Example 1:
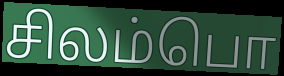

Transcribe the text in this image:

சிலம்பொ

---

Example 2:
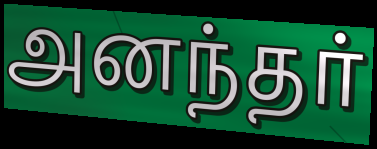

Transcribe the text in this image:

அனந்தர்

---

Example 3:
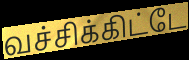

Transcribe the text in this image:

வச்சிக்கிட்டே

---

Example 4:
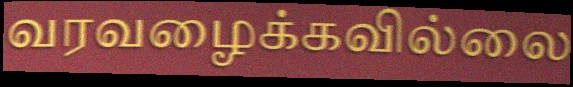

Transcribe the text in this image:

வரவழைக்கவில்லை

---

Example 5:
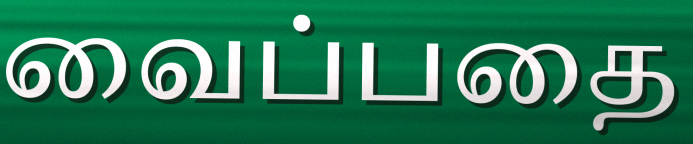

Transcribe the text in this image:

வைப்பதை